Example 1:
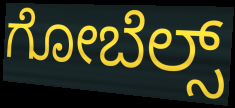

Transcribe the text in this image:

ಗೋಬೆಲ್ಸ್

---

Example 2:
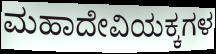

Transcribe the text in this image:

ಮಹಾದೇವಿಯಕ್ಕಗಳ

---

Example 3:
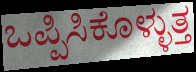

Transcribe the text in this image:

ಒಪ್ಪಿಸಿಕೊಳ್ಳುತ್ತ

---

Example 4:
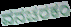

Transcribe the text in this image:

ವನಚರಕಂ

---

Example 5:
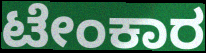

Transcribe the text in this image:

ಟೇಂಕಾರ